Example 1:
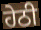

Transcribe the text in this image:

ਹੇਠੀ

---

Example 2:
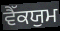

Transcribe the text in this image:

ਵੈੱਕਯੁਮ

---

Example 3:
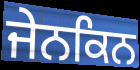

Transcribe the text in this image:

ਜੇਨਕਿਨ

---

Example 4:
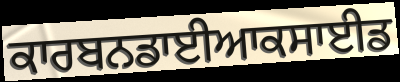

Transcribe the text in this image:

ਕਾਰਬਨਡਾਈਆਕਸਾਈਡ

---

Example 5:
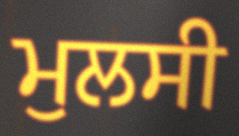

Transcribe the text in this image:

ਮੁਲਸੀ